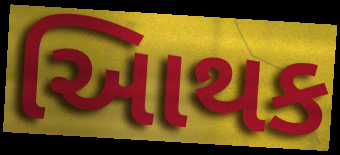
આિથક